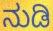
ನುಡಿ